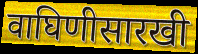
वाघिणीसारखी